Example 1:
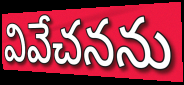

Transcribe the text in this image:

వివేచనను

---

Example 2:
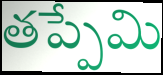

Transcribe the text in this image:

తప్పేమి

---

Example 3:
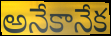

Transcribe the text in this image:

అనేకానేక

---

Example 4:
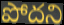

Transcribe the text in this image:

పోదని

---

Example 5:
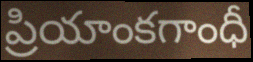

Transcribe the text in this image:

ప్రియాంకగాంధీ